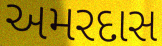
અમરદાસ